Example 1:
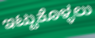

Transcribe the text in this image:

ಇಟ್ಟುಕೊಳ್ಳಲು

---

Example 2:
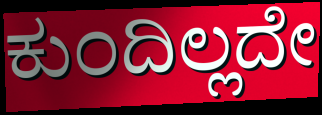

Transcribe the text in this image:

ಕುಂದಿಲ್ಲದೇ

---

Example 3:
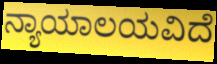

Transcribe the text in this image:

ನ್ಯಾಯಾಲಯವಿದೆ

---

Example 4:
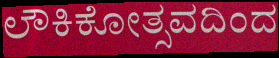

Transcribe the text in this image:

ಲೌಕಿಕೋತ್ಸವದಿಂದ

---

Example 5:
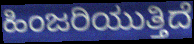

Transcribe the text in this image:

ಹಿಂಜರಿಯುತ್ತಿದೆ